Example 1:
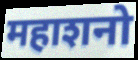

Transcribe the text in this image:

महाशनो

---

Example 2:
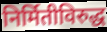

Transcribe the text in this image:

निर्मितीविरुद्ध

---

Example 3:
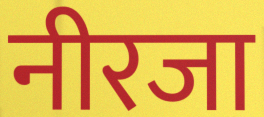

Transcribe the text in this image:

नीरजा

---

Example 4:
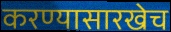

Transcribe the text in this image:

करण्यासारखेच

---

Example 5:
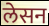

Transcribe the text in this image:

लेसन